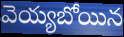
వెయ్యబోయిన